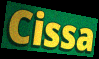
Cissa